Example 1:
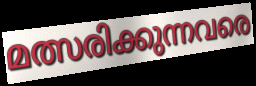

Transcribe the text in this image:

മത്സരിക്കുന്നവരെ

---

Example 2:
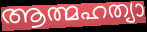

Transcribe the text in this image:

ആത്മഹത്യാ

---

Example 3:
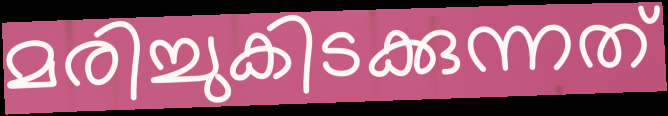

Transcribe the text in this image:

മരിച്ചുകിടക്കുന്നത്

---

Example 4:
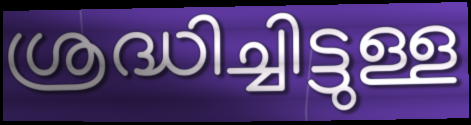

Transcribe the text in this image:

ശ്രദ്ധിച്ചിട്ടുള്ള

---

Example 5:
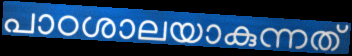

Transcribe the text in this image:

പാഠശാലയാകുന്നത്